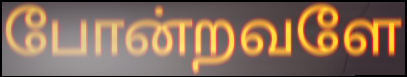
போன்றவளே